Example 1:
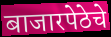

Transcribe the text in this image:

बाजारपेठेचे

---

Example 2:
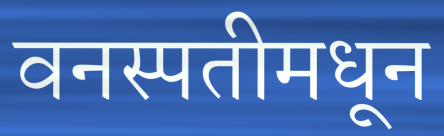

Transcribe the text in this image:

वनस्पतीमधून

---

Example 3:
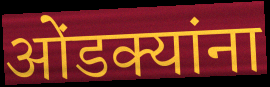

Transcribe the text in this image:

ओंडक्यांना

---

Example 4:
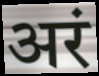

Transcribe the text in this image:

अरं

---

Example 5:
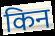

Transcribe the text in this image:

किन